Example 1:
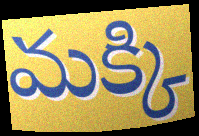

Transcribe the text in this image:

మక్కి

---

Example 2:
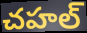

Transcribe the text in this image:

చహల్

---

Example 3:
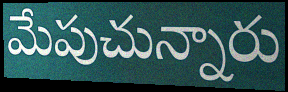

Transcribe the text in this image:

మేపుచున్నారు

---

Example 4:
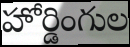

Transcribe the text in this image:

హోర్డింగుల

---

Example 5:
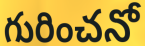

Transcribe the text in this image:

గురించనో